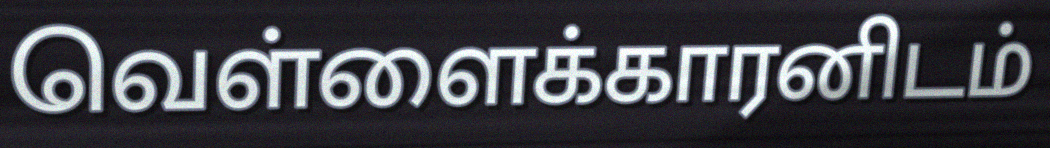
வெள்ளைக்காரனிடம்